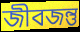
জীবজন্তু